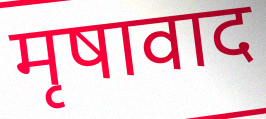
मृषावाद